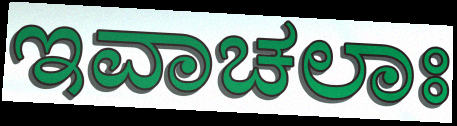
ಇವಾಚಲಾಃ